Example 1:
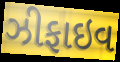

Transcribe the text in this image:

ઝીફાઇવ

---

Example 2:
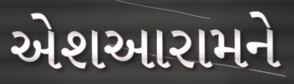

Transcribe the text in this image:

એશઆરામને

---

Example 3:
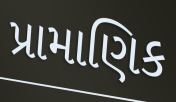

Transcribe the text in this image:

પ્રામાણિક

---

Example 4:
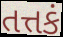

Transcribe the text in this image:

તત્તકં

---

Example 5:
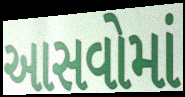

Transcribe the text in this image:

આસવોમાં